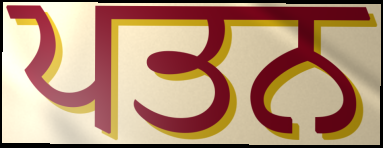
ਪਤਨ